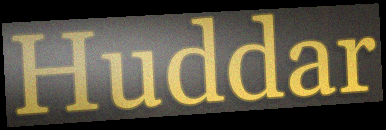
Huddar